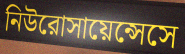
নিউরোসায়েন্সেসে